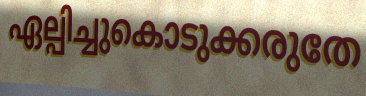
ഏല്പിച്ചുകൊടുക്കരുതേ